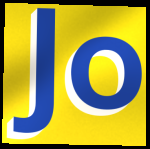
Jo